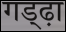
गड्ढ़ा